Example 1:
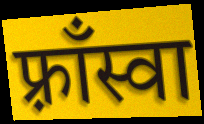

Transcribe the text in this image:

फ़्राँस्वा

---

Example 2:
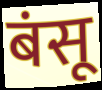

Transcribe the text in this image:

बंसू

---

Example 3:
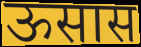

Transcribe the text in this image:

ऊसास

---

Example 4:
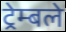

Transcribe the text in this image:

ट्रेम्बले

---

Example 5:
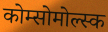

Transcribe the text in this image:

कोम्सोमोल्स्क